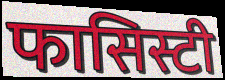
फासिस्टी